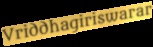
Vriddhagiriswarar